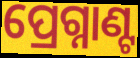
ପ୍ରେଗ୍ନାଣ୍ଟ